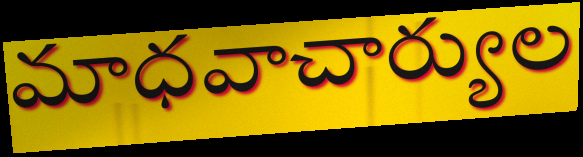
మాధవాచార్యుల